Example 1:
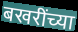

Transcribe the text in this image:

बखरींच्या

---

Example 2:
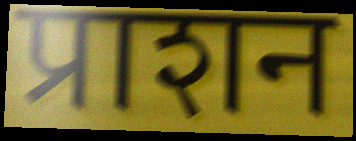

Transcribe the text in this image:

प्राशन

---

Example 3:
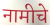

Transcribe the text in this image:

नामीचे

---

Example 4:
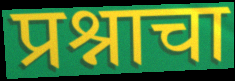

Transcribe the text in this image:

प्रश्नाचा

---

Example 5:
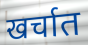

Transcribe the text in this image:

खर्चात